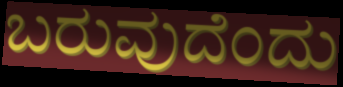
ಬರುವುದೆಂದು